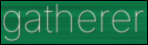
gatherer